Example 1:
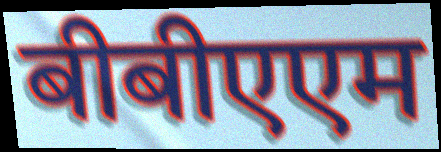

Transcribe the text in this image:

बीबीएएम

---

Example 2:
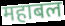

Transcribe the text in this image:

महाबल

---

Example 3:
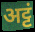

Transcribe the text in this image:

अट्टं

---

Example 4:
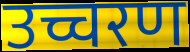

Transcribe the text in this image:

उच्चरण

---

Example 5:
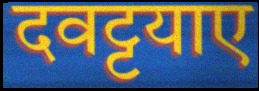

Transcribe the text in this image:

दवट्टयाए